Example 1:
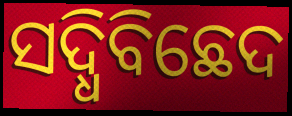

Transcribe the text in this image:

ସଦ୍ଧିବିଛେଦ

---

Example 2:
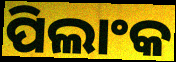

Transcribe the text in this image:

ପିଲାଂକ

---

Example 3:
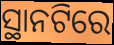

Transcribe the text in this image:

ସ୍ଥାନଟିରେ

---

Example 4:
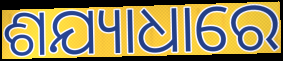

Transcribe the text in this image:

ଶଯ୍ୟାଧାରେ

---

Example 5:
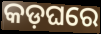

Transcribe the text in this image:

କଡ଼ଘରେ